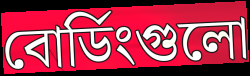
বোর্ডিংগুলো